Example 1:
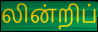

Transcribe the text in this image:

லின்றிப்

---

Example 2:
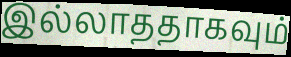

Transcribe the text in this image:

இல்லாததாகவும்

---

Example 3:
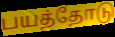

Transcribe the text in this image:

பயத்தோடு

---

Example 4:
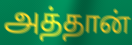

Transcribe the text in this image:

அத்தான்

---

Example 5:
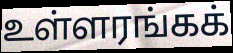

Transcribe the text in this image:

உள்ளரங்கக்